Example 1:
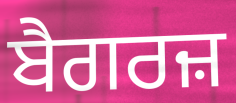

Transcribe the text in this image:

ਬੈਗਰਜ਼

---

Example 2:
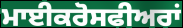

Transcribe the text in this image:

ਮਾਈਕਰੋਸਫੀਅਰਾਂ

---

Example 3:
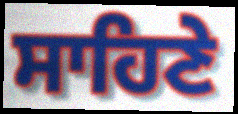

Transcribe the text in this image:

ਸਾਹਿਣੇ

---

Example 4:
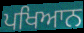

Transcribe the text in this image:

ਪਖਿਆਨ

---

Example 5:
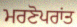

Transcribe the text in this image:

ਮਰਣੋਪਰਾਂਤ